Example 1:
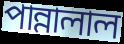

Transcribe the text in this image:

পান্নালাল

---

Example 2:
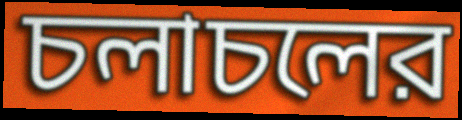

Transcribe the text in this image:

চলাচলের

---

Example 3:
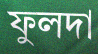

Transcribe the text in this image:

ফুলদা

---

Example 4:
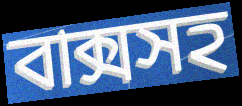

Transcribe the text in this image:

বাক্সসহ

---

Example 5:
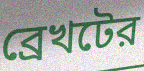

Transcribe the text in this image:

ব্রেখটের